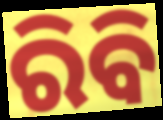
ରିବି